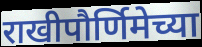
राखीपौर्णिमेच्या